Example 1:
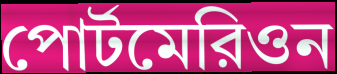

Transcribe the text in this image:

পোর্টমেরিওন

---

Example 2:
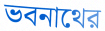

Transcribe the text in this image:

ভবনাথের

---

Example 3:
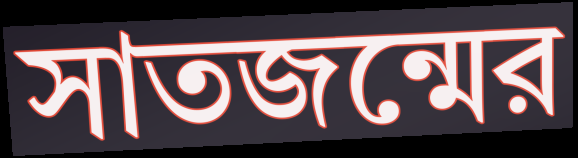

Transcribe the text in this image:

সাতজন্মের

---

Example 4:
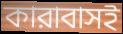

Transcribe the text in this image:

কারাবাসই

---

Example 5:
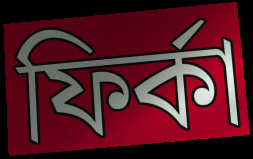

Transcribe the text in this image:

ফির্কা